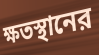
ক্ষতস্থানের